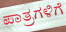
ಪಾತ್ರಗಳಿಗೆ